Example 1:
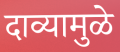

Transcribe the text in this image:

दाव्यामुळे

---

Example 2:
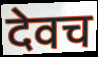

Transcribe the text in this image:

देवच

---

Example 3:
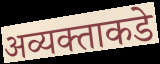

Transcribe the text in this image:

अव्यक्ताकडे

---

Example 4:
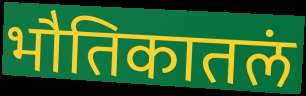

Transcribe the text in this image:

भौतिकातलं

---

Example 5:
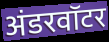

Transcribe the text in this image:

अंडरवॉटर